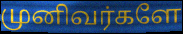
முனிவர்களே